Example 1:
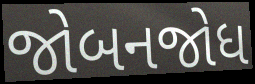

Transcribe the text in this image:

જોબનજોધ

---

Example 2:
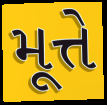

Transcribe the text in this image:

મૂત્તે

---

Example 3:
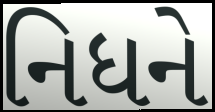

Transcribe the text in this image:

નિધને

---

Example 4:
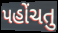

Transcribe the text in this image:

પહોંચતુ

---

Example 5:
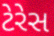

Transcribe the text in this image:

ટેરેસ